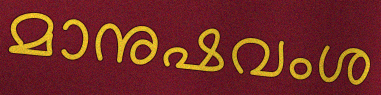
മാനുഷവംശ